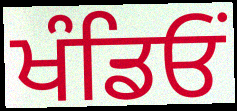
ਖੰਡਿਓਂ